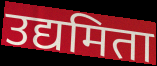
उद्यमिता